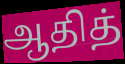
ஆதித்